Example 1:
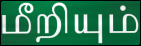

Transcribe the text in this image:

மீறியும்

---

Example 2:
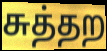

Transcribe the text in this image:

சுத்தற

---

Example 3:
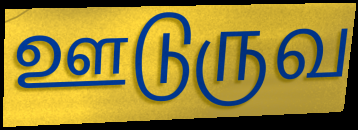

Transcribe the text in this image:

ஊடுருவ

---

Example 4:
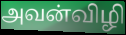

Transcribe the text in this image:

அவன்விழி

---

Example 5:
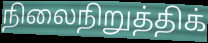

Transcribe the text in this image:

நிலைநிறுத்திக்